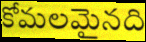
కోమలమైనది